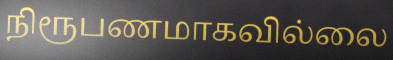
நிரூபணமாகவில்லை